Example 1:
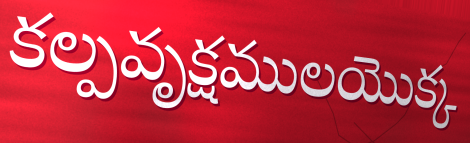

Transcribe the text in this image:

కల్పవృక్షములయొక్క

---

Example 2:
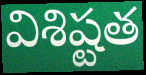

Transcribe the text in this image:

విశిష్టత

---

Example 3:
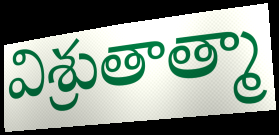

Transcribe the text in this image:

విశ్రుతాత్మా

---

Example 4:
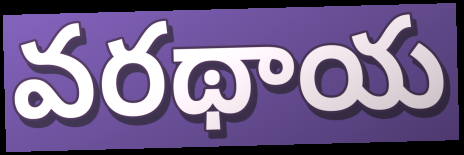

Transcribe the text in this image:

వరథాయ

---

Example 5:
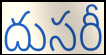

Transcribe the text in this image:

దుసరీ